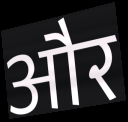
और